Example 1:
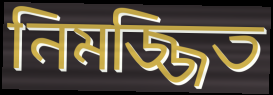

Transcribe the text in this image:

নিমজ্জিত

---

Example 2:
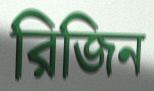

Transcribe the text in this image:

রিজিন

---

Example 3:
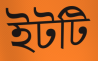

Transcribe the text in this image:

ইটটি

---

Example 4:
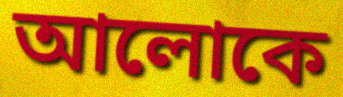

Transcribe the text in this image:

আলোকে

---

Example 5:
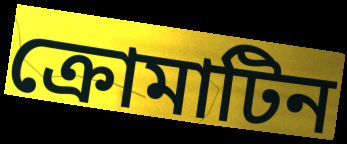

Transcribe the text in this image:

ক্রোমাটিন